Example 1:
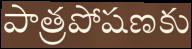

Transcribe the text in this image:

పాత్రపోషణకు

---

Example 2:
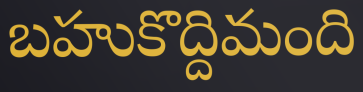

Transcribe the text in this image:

బహుకొద్దిమంది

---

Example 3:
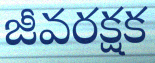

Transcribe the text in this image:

జీవరక్షక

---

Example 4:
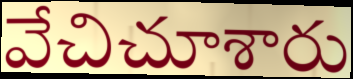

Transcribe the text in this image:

వేచిచూశారు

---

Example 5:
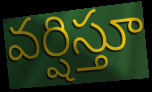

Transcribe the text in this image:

వర్షిస్తూ